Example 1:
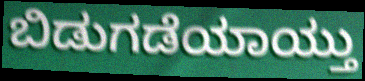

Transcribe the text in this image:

ಬಿಡುಗಡೆಯಾಯ್ತು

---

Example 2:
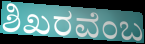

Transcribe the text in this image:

ಶಿಖರವೆಂಬ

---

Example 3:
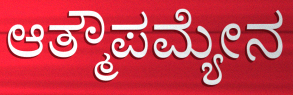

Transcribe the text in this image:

ಆತ್ಮೌಪಮ್ಯೇನ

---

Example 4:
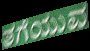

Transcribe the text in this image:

ತಗೆಯುವ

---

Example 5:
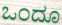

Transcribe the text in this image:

ಒಂದೂ